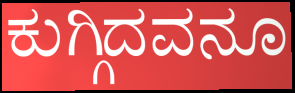
ಕುಗ್ಗಿದವನೂ